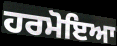
ਹਰਮੋਇਆ